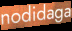
nodidaga